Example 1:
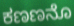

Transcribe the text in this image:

ಕಣಣನೊ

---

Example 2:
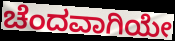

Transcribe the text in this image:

ಚೆಂದವಾಗಿಯೇ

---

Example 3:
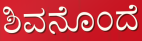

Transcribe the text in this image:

ಶಿವನೊಂದೆ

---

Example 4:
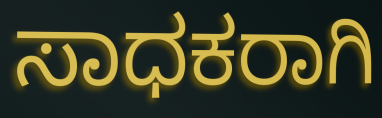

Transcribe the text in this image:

ಸಾಧಕರಾಗಿ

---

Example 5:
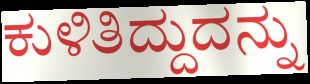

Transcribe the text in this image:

ಕುಳಿತಿದ್ದುದನ್ನು